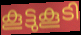
കൂട്ടുകൂടി